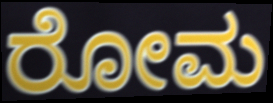
ರೋಮ